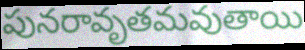
పునరావృతమవుతాయి